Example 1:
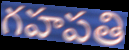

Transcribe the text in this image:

గహపతి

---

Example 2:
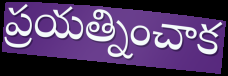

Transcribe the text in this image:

ప్రయత్నించాక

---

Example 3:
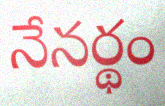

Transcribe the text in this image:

నేనర్థం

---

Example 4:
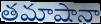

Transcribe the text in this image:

తమాషానా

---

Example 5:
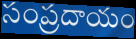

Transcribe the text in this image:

సంప్రదాయం